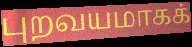
புறவயமாகக்